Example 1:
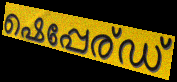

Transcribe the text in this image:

ഷെപ്പേര്ഡ്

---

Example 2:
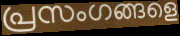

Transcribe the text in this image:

പ്രസംഗങ്ങളെ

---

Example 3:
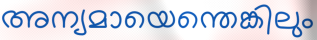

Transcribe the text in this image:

അന്യമായെന്തെങ്കിലും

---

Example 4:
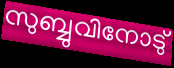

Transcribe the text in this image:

സുബ്ബുവിനോടു്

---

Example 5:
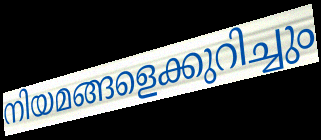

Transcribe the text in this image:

നിയമങ്ങളെക്കുറിച്ചും